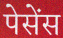
पेसेंस